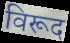
विरूद